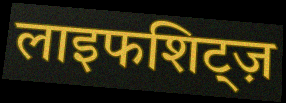
लाइफशिट्ज़